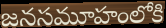
జనసమూహంలోకి